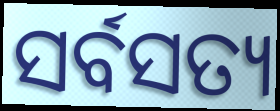
ସର୍ବସତ୍ୟ